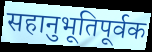
सहानुभूतिपूर्वक